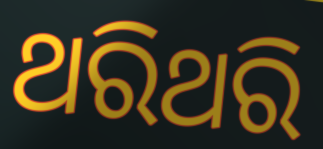
ଥରିଥରି